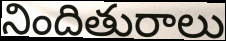
నిందితురాలు